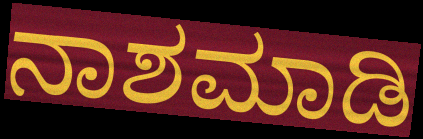
ನಾಶಮಾಡಿ